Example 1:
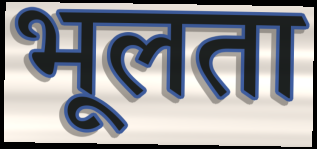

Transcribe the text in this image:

भूलता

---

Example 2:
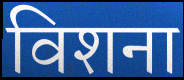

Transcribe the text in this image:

विशना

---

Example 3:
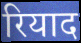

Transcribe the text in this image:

रियाद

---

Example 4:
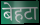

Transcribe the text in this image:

बेहटा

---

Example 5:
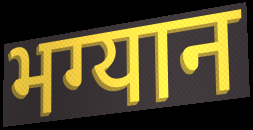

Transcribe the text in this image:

भग्यान